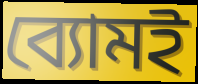
ব্যোমই